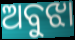
ଅବୁଝା